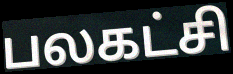
பலகட்சி